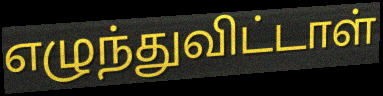
எழுந்துவிட்டாள்